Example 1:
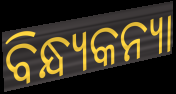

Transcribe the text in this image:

ବିନ୍ଧ୍ୟକନ୍ୟା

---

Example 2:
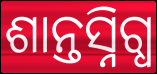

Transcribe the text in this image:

ଶାନ୍ତସ୍ନିଗ୍ଧ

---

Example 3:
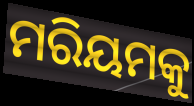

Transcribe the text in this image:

ମରିୟମକୁ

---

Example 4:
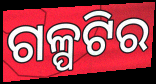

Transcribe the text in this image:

ଗଳ୍ପଟିର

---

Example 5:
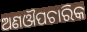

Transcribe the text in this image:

ଅଣଔପଚାରିକ